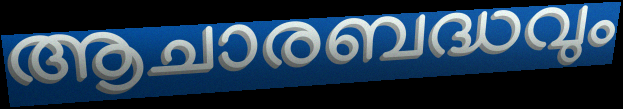
ആചാരബദ്ധവും